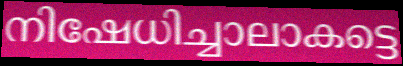
നിഷേധിച്ചാലാകട്ടെ